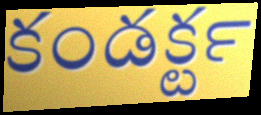
కండక్టర్‍